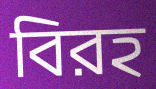
বিরহ